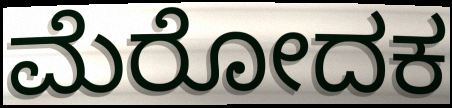
ಮೆರೋದಕ